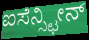
ಐಸೆನ್ಸ್ಟೀನ್